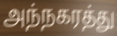
அந்நகரத்து